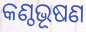
କଣ୍ଠଭୂଷଣ